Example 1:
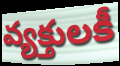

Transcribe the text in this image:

వ్యక్తులకీ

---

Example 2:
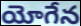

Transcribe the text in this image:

యోగేన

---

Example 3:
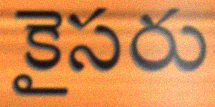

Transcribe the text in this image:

కైసరు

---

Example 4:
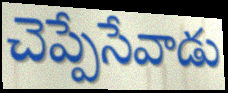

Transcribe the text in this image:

చెప్పేసేవాడు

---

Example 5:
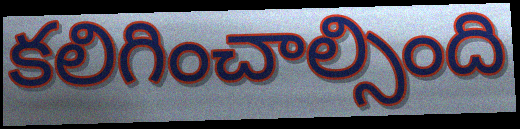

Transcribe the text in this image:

కలిగించాల్సింది